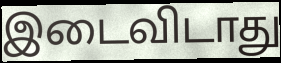
இடைவிடாது